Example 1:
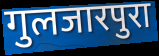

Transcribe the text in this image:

गुलजारपुरा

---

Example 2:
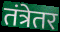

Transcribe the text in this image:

तंत्रेतर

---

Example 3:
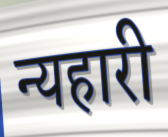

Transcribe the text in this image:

न्यहारी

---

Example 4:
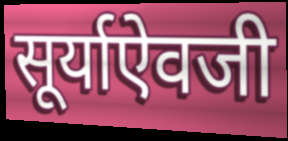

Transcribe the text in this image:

सूर्याऐवजी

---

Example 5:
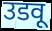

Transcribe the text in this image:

उडवू